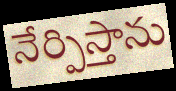
నేర్పిస్తాను